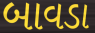
બાવડા